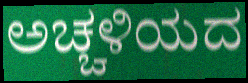
ಅಚ್ಚಳಿಯದ